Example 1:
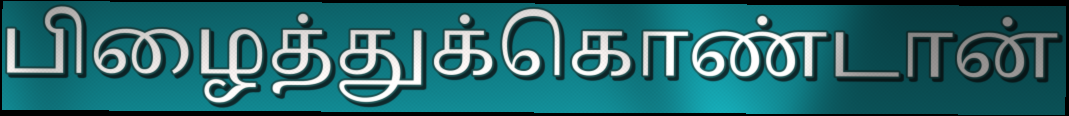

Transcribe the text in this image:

பிழைத்துக்கொண்டான்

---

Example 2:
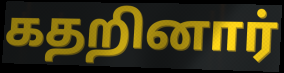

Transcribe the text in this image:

கதறினார்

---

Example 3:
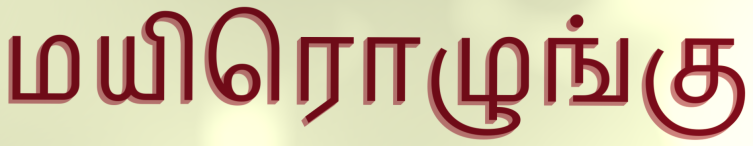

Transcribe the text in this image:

மயிரொழுங்கு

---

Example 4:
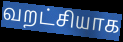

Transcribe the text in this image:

வறட்சியாக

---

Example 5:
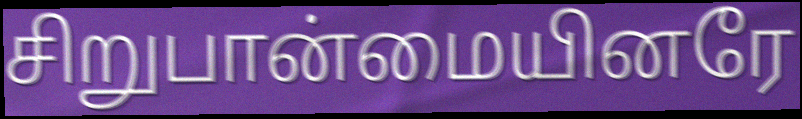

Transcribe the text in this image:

சிறுபான்மையினரே